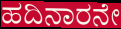
ಹದಿನಾರನೇ